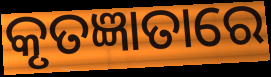
କୃତଜ୍ଞାତାରେ